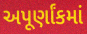
અપૂર્ણાંકમાં